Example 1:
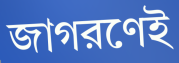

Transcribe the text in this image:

জাগরণেই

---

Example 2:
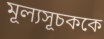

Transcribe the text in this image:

মূল্যসূচককে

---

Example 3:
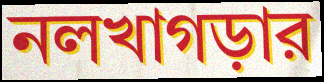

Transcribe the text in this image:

নলখাগড়ার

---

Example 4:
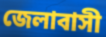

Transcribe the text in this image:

জেলাবাসী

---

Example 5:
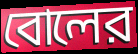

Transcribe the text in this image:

বোলের